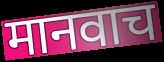
मानवाच